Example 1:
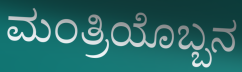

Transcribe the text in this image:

ಮಂತ್ರಿಯೊಬ್ಬನ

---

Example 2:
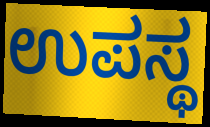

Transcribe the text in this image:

ಉಪಸ್ಥ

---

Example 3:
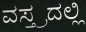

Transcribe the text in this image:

ವಸ್ತ್ರದಲ್ಲಿ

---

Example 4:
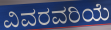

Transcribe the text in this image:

ವಿವರವರಿಯೆ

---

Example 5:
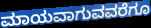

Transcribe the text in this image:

ಮಾಯವಾಗುವವರೆಗೂ